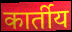
कार्तीय